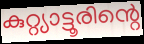
കുറ്റ്യാട്ടൂരിന്റെ